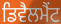
ਡਿਵੈਲਮੈਂਟ